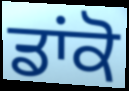
ਡਾਂਕੋ